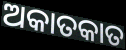
ଅକାତକାତ